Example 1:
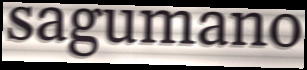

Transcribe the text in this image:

sagumano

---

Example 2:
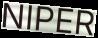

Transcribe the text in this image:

NIPER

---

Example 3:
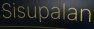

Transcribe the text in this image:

Sisupalan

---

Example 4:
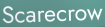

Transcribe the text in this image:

Scarecrow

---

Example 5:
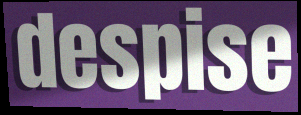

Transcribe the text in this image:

despise